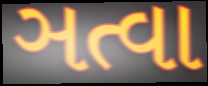
ઞત્વા